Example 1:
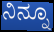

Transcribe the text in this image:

ನಿನ್ನೂ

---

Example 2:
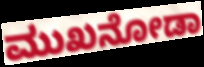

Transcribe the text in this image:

ಮುಖನೋಡಾ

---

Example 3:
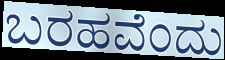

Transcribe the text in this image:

ಬರಹವೆಂದು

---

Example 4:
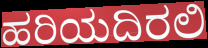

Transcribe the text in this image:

ಹರಿಯದಿರಲಿ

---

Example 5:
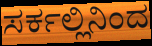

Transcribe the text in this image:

ಸರ್ಕಲ್ಲಿನಿಂದ